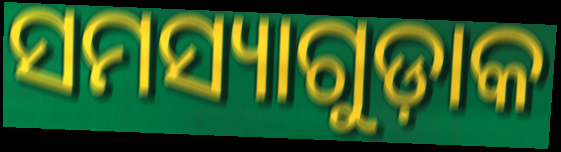
ସମସ୍ୟାଗୁଡ଼ାକ